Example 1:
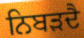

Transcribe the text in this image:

ਨਿਬੜਦੈ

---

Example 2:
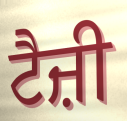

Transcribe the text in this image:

ਟੈਜ਼ੀ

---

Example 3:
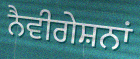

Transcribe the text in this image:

ਨੈਵੀਗੇਸ਼ਨਾਂ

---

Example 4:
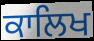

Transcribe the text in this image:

ਕਾਲਿਖ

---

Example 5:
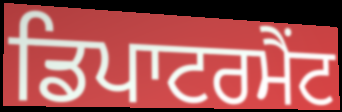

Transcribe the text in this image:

ਡਿਪਾਟਰਮੈਂਟ